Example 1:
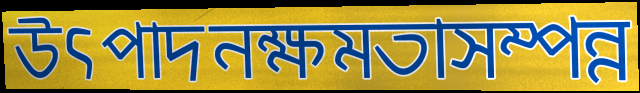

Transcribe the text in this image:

উৎপাদনক্ষমতাসম্পন্ন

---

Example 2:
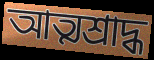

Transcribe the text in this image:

আত্মশ্রাদ্ধ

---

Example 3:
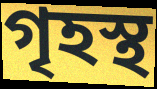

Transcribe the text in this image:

গৃহস্থ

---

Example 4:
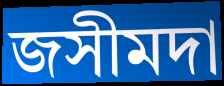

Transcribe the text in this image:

জসীমদা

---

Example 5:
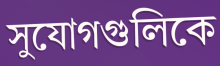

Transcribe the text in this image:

সুযোগগুলিকে